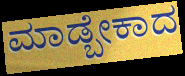
ಮಾಡ್ಬೇಕಾದ